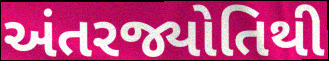
અંતરજ્યોતિથી